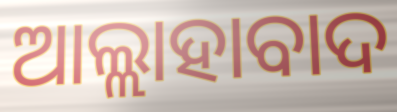
ଆଲ୍ଲାହାବାଦ